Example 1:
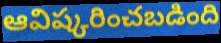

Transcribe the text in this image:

ఆవిష్కరించబడింది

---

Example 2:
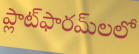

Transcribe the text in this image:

ప్లాట్‌ఫారమ్‌లలో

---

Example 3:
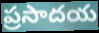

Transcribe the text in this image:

ప్రసాదయ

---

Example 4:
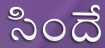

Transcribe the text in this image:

సిందే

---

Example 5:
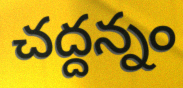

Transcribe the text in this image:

చద్దన్నం